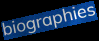
biographies